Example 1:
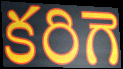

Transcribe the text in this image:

కరిగె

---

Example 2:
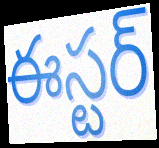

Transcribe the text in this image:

ఈస్టర్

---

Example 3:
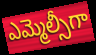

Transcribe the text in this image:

ఎమ్మెల్సీగా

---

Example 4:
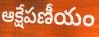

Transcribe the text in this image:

ఆక్షేపణీయం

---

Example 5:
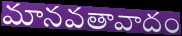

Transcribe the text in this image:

మానవతావాదం